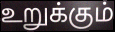
உறுக்கும்